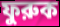
ফুরুক